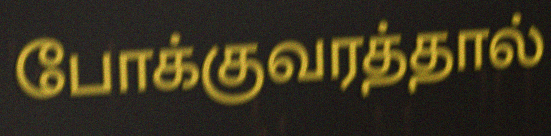
போக்குவரத்தால்